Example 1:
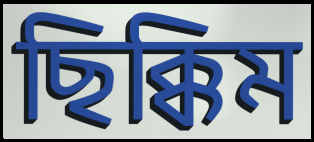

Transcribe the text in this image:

ছিক্কিম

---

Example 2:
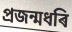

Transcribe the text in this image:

প্ৰজন্মধৰি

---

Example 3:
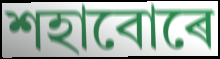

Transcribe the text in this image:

শহাবোৰে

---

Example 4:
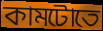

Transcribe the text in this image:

কামটোতে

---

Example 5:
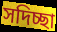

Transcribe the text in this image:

সদিচ্ছা